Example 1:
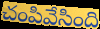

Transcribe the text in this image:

చంపివేసింది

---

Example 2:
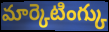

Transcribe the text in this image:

మార్కెటింగ్కు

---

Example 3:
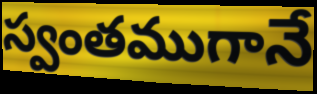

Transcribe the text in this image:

స్వంతముగానే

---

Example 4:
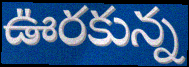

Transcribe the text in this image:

ఊరకున్న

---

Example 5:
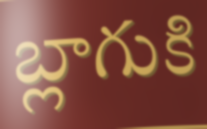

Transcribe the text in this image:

బ్లాగుకి